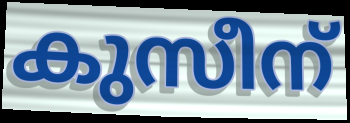
കുസീന്